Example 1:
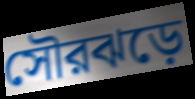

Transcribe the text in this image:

সৌরঝড়ে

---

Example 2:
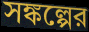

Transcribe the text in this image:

সঙ্কল্পের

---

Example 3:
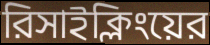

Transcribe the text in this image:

রিসাইক্লিংয়ের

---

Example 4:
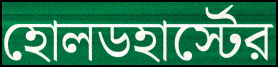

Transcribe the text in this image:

হোলডহার্স্টের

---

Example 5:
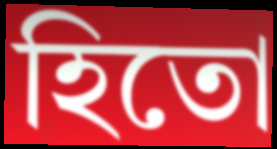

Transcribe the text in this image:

হিতো